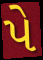
પે